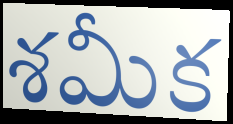
శమీక